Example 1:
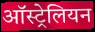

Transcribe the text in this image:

ऑस्ट्रेलियन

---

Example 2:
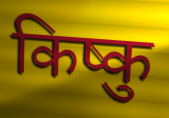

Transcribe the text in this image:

किष्कु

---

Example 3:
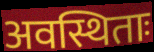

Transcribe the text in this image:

अवस्थिताः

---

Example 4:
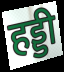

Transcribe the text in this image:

हड्डी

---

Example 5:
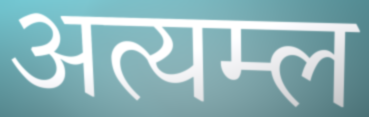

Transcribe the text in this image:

अत्यम्ल